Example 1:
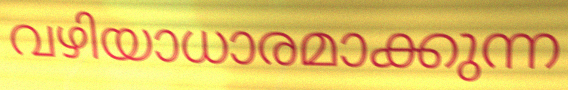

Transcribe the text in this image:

വഴിയാധാരമാക്കുന്ന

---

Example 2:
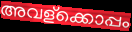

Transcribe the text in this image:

അവള്ക്കൊപ്പം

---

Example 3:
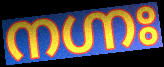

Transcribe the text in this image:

നഗ്നഃ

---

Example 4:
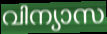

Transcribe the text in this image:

വിന്യാസ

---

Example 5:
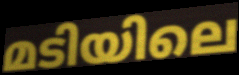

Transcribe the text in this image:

മടിയിലെ